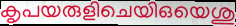
കൃപയരുളിചെയിഒയെശു